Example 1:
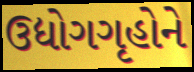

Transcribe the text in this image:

ઉદ્યોગગૃહોને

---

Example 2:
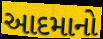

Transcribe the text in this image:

આદમાનો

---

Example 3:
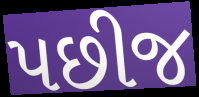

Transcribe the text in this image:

પછીજ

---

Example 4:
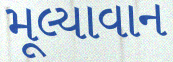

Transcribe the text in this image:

મૂલ્યાવાન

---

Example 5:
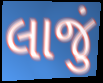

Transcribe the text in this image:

લાજું